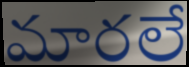
మారలే